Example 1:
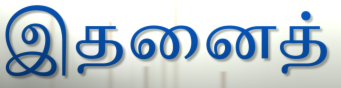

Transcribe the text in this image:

இதனைத்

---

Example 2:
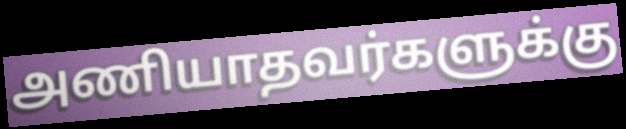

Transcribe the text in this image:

அணியாதவர்களுக்கு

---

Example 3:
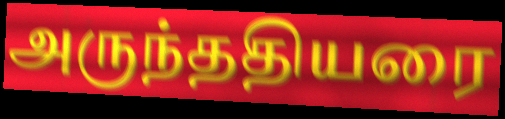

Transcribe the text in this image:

அருந்ததியரை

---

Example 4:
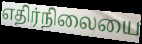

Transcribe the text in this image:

எதிர்நிலையை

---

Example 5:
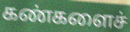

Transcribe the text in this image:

கண்களைச்